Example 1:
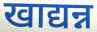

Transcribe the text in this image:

खाद्यन्न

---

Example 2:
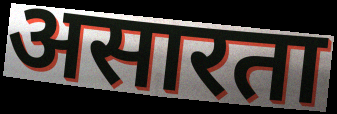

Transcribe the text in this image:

असारता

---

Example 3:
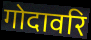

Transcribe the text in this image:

गोदावरि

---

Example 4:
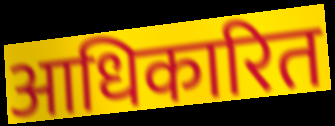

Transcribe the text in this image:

आधिकारित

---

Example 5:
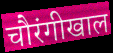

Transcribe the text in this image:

चौरंगीखाल